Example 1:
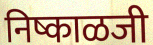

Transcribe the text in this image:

निष्काळजी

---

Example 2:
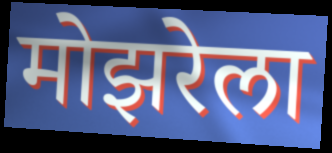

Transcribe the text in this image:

मोझरेला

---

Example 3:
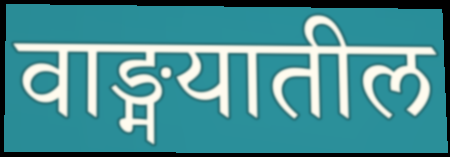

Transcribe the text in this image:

वाङ्मयातील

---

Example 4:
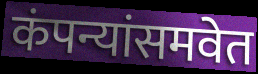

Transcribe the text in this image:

कंपन्यांसमवेत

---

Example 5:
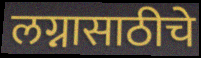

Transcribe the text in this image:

लग्नासाठीचे